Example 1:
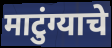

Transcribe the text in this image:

माटुंग्याचे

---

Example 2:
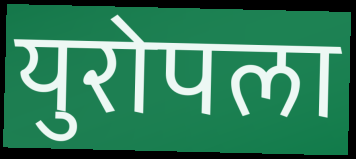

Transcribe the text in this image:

युरोपला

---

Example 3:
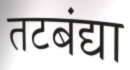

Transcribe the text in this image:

तटबंद्या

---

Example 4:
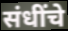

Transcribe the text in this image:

संधींचे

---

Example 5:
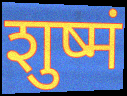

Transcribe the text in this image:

शुष्मं